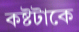
কষ্টটাকে